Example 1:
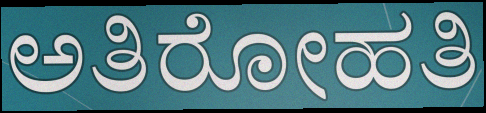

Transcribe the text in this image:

ಅತಿರೋಹತಿ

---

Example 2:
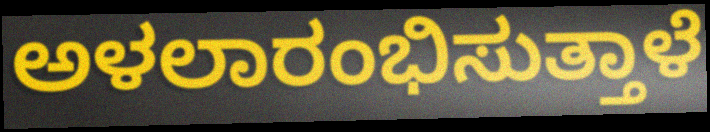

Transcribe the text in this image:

ಅಳಲಾರಂಭಿಸುತ್ತಾಳೆ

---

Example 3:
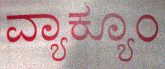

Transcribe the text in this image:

ವ್ಯಾಕ್ಯೂಂ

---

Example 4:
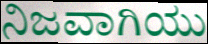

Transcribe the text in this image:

ನಿಜವಾಗಿಯು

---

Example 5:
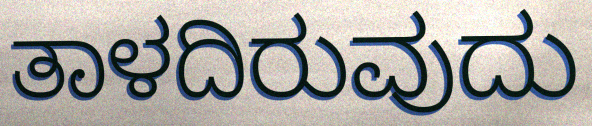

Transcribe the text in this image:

ತಾಳದಿರುವುದು